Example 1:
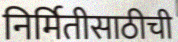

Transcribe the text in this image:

निर्मितीसाठीची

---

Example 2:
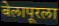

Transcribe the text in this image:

बेलापूरला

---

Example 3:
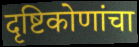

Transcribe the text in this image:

दृष्टिकोणांचा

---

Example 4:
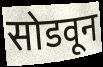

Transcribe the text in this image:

सोडवून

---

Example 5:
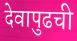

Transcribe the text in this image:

देवापुढची